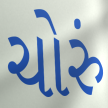
ચોરું